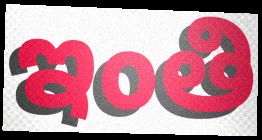
ఇంతి